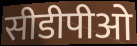
सीडीपीओ